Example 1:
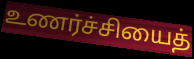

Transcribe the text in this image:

உணர்ச்சியைத்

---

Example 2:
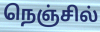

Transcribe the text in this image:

நெஞ்சில்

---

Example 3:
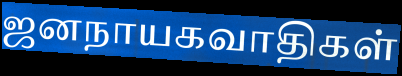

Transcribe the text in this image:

ஜனநாயகவாதிகள்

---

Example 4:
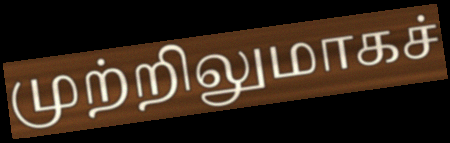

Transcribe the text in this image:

முற்றிலுமாகச்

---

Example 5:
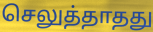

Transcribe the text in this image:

செலுத்தாதது